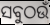
ସବୁଠଉଁ